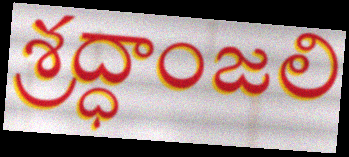
శ్రద్ధాంజలి